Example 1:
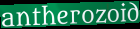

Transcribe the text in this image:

antherozoid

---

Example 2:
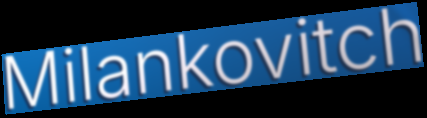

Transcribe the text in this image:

Milankovitch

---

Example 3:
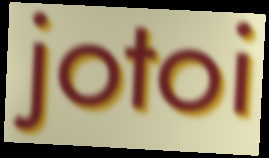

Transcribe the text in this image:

jotoi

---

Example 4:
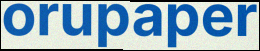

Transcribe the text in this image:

orupaper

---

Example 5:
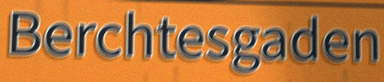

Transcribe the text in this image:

Berchtesgaden